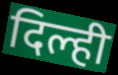
दिल्ही